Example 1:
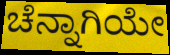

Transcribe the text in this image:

ಚೆನ್ನಾಗಿಯೇ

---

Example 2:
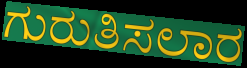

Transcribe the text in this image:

ಗುರುತಿಸಲಾರ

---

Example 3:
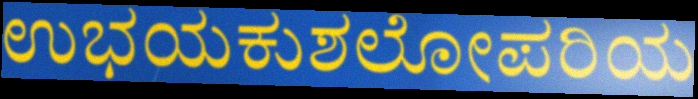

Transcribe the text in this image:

ಉಭಯಕುಶಲೋಪರಿಯ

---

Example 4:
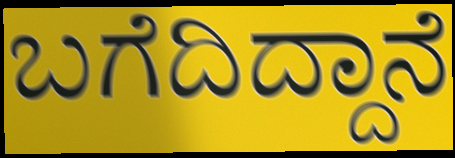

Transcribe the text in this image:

ಬಗೆದಿದ್ದಾನೆ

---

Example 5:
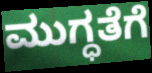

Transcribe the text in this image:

ಮುಗ್ಧತೆಗೆ